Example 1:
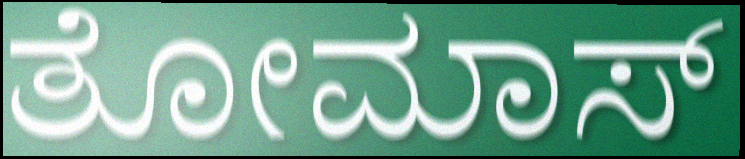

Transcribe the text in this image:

ತೋಮಾಸ್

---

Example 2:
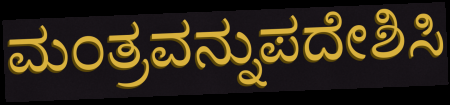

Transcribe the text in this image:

ಮಂತ್ರವನ್ನುಪದೇಶಿಸಿ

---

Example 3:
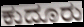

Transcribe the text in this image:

ಕುದೂರು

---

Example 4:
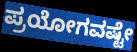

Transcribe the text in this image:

ಪ್ರಯೋಗವಷ್ಟೇ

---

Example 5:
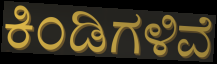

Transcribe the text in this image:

ಕಿಂಡಿಗಳಿವೆ